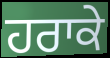
ਹਰਾਕੇ